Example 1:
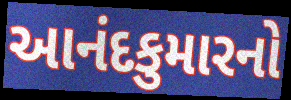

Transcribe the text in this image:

આનંદકુમારનો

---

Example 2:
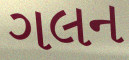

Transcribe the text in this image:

ગલન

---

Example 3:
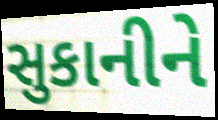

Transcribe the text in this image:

સુકાનીને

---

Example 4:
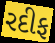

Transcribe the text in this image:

રદીફ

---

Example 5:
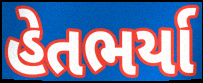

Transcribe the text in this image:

હેતભર્યા